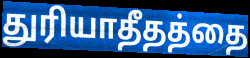
துரியாதீதத்தை